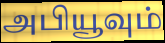
அபியூவும்